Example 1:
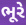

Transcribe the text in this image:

ભૂરે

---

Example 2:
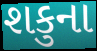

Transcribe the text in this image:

શકુના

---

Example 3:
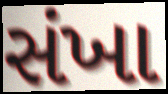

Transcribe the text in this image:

સંખા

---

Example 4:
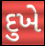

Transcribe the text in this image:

દુખે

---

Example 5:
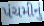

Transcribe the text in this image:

પંચમીનું